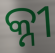
କ୍ନୀ